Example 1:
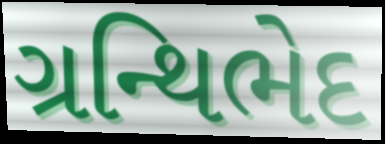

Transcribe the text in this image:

ગ્રન્થિભેદ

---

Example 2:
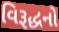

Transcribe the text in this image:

વિરૂદ્ધનો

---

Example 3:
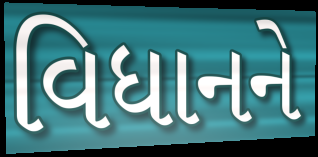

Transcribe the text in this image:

વિધાનને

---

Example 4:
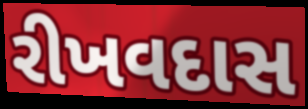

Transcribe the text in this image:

રીખવદાસ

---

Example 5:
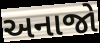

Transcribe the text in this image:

અનાજો